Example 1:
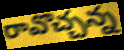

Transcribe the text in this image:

రావొచ్చన్న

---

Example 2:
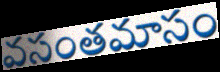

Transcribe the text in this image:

వసంతమాసం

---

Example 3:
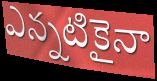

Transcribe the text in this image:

ఎన్నటికైనా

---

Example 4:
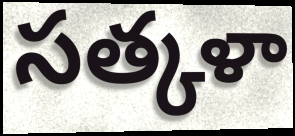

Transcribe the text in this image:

సత్కళా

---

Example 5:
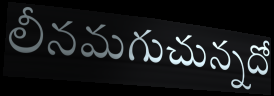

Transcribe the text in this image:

లీనమగుచున్నదో